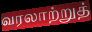
வரலாற்றுத்